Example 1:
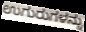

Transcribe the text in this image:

ಉಗುರುಗಳನ್ನು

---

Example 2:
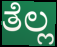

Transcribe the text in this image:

ತೆಲ್ಲ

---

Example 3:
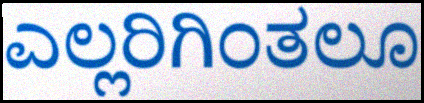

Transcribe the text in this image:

ಎಲ್ಲರಿಗಿಂತಲೂ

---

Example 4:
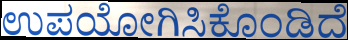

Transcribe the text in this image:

ಉಪಯೋಗಿಸಿಕೊಂಡಿದೆ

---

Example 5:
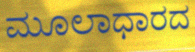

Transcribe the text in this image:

ಮೂಲಾಧಾರದ